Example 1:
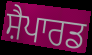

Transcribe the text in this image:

ਸ਼ੈਪਾਰਡ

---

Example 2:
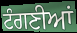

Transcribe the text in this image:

ਟੰਗਣੀਆਂ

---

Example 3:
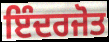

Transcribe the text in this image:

ਇੰਦਰਜੋਤ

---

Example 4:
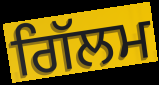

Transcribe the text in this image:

ਗਿੱਲਮ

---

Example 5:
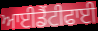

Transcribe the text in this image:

ਆਈਡੈਂਟੀਫਾਈ